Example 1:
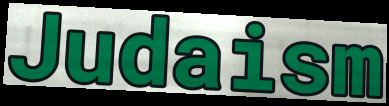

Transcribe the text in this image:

Judaism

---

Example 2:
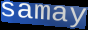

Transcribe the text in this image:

samay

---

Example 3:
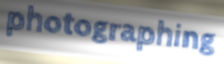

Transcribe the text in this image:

photographing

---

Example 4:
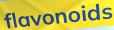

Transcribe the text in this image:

flavonoids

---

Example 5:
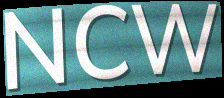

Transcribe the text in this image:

NCW